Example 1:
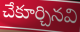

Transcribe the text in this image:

చేకూర్చినవి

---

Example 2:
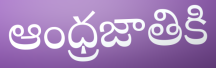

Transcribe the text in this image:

ఆంధ్రజాతికి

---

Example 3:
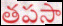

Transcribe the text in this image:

తపసా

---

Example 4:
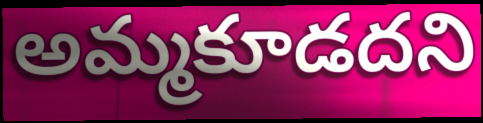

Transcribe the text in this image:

అమ్మకూడదని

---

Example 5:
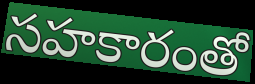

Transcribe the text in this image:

సహకారంతో